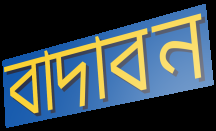
বাদাবন